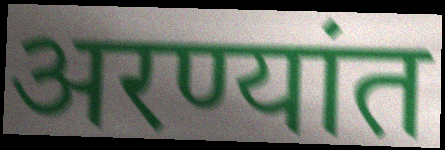
अरण्यांत